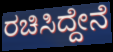
ರಚಿಸಿದ್ದೇನೆ